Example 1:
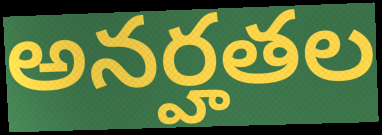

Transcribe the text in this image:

అనర్హతల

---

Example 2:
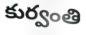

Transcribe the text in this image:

కుర్వంతి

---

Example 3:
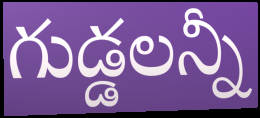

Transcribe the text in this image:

గుడ్డలన్నీ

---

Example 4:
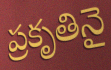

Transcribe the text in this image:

ప్రకృతినై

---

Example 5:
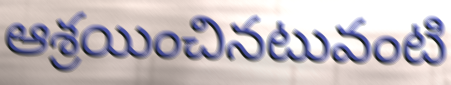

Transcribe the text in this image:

ఆశ్రయించినటువంటి